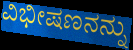
ವಿಭೀಷಣನನ್ನು